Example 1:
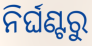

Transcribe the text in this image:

ନିର୍ଘଣ୍ଟରୁ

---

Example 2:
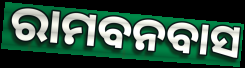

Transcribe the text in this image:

ରାମବନବାସ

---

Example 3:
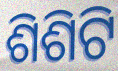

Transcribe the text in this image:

ଶିଶିଟି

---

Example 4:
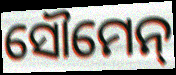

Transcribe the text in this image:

ସୌମେନ୍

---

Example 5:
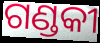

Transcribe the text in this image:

ଗଣ୍ଡକୀ